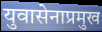
युवासेनाप्रमुख